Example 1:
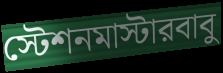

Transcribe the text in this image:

স্টেশনমাস্টারবাবু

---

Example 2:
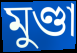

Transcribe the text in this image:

মুণ্ডা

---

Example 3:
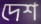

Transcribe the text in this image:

দেশ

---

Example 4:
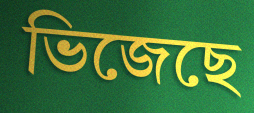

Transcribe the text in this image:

ভিজেছে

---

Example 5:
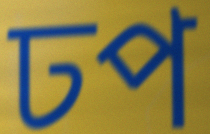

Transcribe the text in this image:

ঢপ